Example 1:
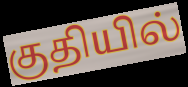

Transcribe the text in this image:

குதியில்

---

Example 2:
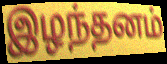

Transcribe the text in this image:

இழந்தனம்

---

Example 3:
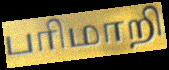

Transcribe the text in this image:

பரிமாறி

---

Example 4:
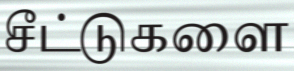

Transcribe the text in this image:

சீட்டுகளை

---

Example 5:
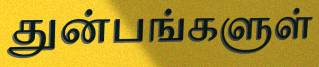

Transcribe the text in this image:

துன்பங்களுள்